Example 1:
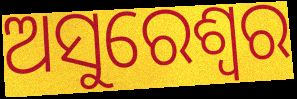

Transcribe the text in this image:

ଅସୁରେଶ୍ୱର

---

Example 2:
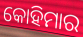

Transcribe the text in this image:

କୋହିମାର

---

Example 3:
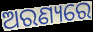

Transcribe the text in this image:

ଅରଣ୍ୟରେ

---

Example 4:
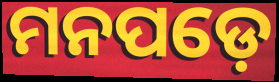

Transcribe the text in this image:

ମନପଡ଼େ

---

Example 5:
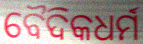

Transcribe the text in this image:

ବୈଦିକଧର୍ମ